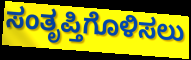
ಸಂತೃಪ್ತಿಗೊಳಿಸಲು